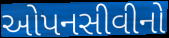
ઓપનસીવીનો